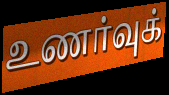
உணர்வுக்